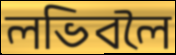
লভিবলৈ